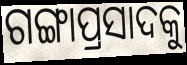
ଗଙ୍ଗାପ୍ରସାଦକୁ